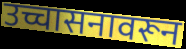
उच्चासनावरून